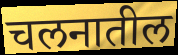
चलनातील